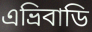
এভ্ৰিবাডি